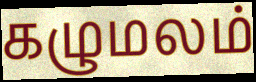
கழுமலம்